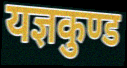
यज्ञकुण्ड